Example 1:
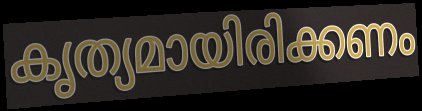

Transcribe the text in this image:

കൃത്യമായിരിക്കണം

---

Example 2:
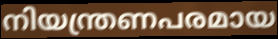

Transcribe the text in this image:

നിയന്ത്രണപരമായ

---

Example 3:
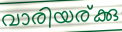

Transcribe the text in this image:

വാരിയര്ക്കു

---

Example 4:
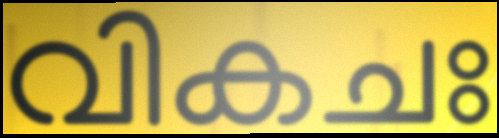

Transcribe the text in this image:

വികചഃ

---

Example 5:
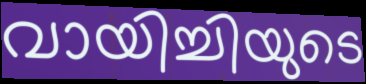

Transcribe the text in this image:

വായിച്ചിയുടെ